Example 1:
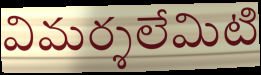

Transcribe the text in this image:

విమర్శలేమిటి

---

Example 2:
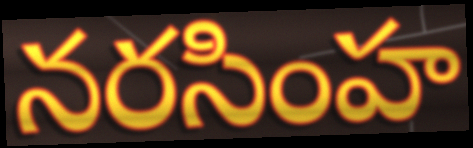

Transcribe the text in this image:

నరసింహ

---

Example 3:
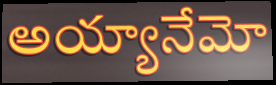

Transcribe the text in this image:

అయ్యానేమో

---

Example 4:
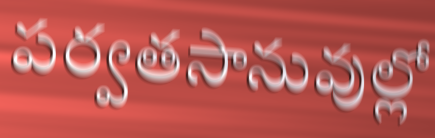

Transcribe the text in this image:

పర్వతసానువుల్లో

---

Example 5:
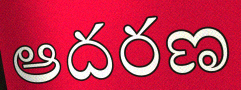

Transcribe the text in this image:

ఆదరణ